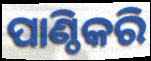
ପାଣ୍ଠିକରି